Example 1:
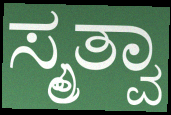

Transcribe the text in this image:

ಸ್ಮೃತ್ವಾ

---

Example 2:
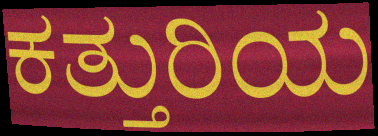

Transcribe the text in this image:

ಕತ್ತುರಿಯ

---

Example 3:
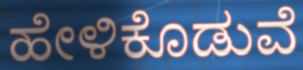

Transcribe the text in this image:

ಹೇಳಿಕೊಡುವೆ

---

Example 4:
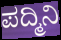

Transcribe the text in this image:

ಪದ್ಮಿನಿ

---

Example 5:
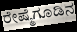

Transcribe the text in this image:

ರೇಷ್ಮೆಗೂಡಿನ